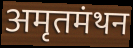
अमृतमंथन